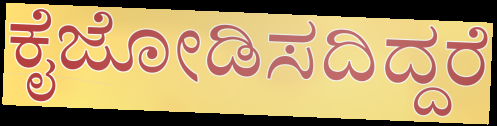
ಕೈಜೋಡಿಸದಿದ್ದರೆ